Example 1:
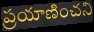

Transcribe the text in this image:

ప్రయాణించని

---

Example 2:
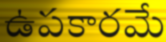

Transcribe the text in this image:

ఉపకారమే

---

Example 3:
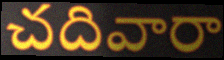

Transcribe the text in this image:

చదివారా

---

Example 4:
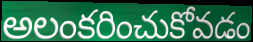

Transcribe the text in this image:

అలంకరించుకోవడం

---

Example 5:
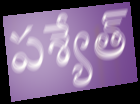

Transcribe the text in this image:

పశ్యేత్